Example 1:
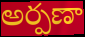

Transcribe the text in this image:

అర్పణా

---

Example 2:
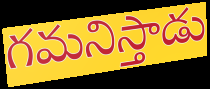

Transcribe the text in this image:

గమనిస్తాడు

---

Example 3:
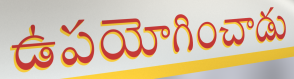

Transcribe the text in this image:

ఉపయోగించాడు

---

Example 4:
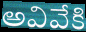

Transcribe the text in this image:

అవివేకి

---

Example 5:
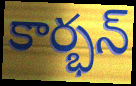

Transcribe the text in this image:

కార్భన్